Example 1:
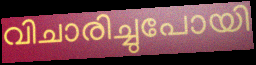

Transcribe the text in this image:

വിചാരിച്ചുപോയി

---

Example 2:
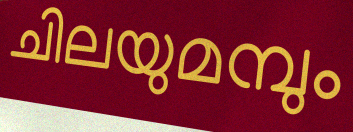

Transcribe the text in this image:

ചിലയുമമ്പും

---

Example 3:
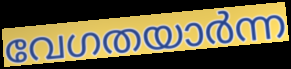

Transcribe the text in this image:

വേഗതയാർന്ന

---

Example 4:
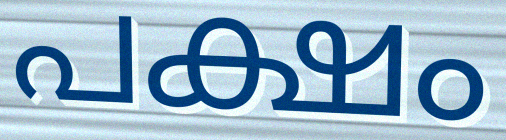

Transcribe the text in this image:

പക്ഷം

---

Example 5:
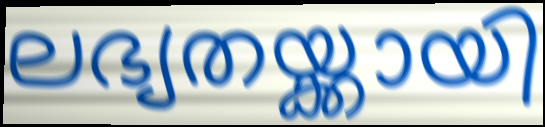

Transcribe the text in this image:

ലഭ്യതയ്ക്കായി